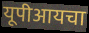
यूपीआयचा